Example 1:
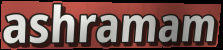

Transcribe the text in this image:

ashramam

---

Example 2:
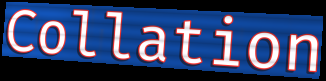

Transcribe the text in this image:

Collation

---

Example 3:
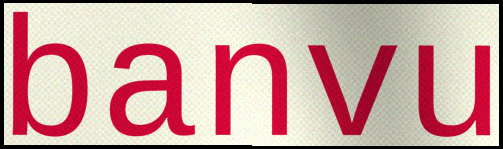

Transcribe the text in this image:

banvu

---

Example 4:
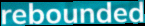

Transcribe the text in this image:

rebounded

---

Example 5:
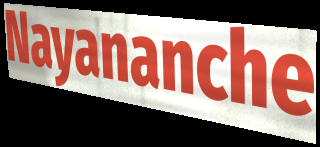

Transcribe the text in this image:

Nayananche